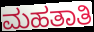
ಮಹತಾತಿ